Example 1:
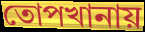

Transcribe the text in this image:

তোপখানায়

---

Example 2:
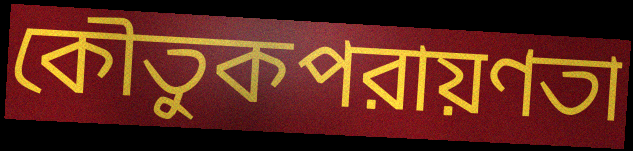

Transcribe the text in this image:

কৌতুকপরায়ণতা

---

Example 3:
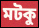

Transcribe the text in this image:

মটকু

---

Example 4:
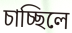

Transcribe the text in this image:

চাচ্ছিলে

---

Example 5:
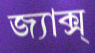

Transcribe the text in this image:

জ্যাক্স্